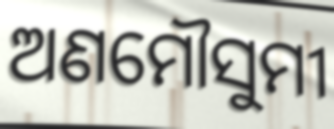
ଅଣମୌସୁମୀ